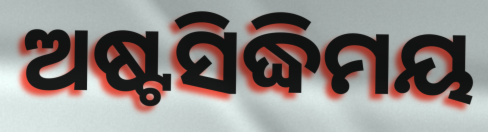
ଅଷ୍ଟସିଦ୍ଧିମୟ